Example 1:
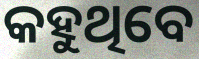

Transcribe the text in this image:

କହୁଥିବେ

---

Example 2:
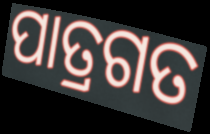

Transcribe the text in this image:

ପାତ୍ରଗତ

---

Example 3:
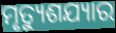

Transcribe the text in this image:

ମୃତ୍ୟୁଶଯ୍ୟାର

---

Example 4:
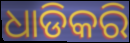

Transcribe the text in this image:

ଧାଡିକରି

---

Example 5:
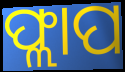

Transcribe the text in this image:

ଫ୍ଲାପ